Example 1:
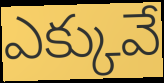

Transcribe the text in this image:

ఎక్కువే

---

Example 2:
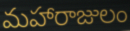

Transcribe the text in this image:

మహారాజులం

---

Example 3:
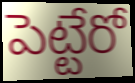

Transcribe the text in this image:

పెట్టేరో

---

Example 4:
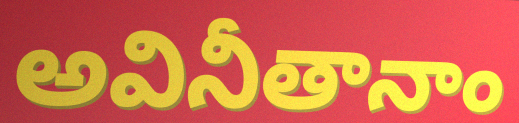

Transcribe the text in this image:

అవినీతానాం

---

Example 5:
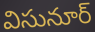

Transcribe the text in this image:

విసునూర్